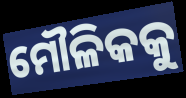
ମୌଳିକକୁ